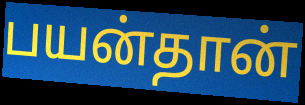
பயன்தான்